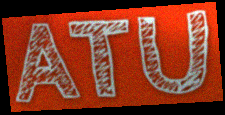
ATU